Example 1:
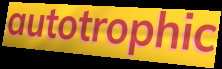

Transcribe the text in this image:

autotrophic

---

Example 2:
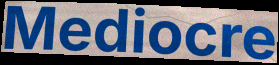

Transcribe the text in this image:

Mediocre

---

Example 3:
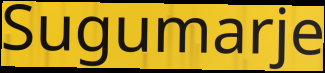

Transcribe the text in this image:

Sugumarje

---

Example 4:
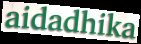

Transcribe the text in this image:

aidadhika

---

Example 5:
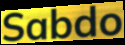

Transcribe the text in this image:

Sabdo